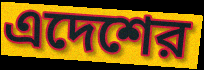
এদেশের